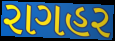
રાગહર